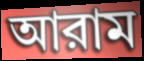
আরাম